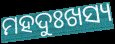
ମହଦୁଃଖସ୍ୟ